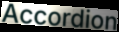
Accordion